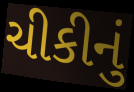
ચીકીનું